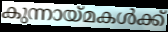
കുന്നായ്മകൾക്ക്